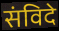
संविदे